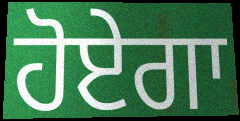
ਹੋਏਗਾ